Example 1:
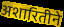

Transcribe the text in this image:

अशारितीने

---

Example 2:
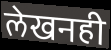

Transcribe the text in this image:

लेखनही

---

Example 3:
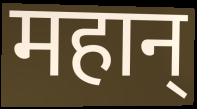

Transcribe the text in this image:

महान्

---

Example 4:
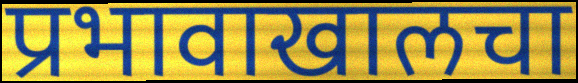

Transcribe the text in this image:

प्रभावाखालचा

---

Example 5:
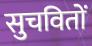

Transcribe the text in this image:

सुचवितों